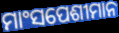
ମାଂସପେଶୀମାନ